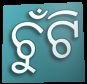
ଚୁଁଟି